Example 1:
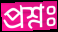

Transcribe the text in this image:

প্রশ্নঃ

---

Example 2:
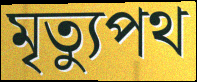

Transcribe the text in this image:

মৃত্যুপথ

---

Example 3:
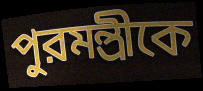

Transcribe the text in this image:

পুরমন্ত্রীকে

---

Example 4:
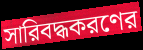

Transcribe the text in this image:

সারিবদ্ধকরণের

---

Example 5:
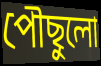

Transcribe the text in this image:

পৌছুলো